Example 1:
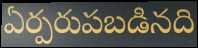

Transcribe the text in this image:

ఏర్పరుపబడినది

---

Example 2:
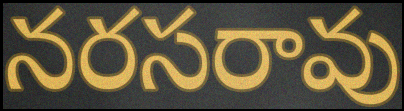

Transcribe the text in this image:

నరసరావు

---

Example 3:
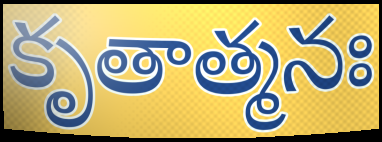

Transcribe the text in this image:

కృతాత్మనః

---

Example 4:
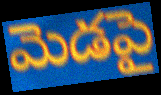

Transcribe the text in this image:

మెడపై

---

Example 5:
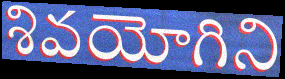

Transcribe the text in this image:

శివయోగిని